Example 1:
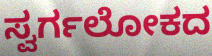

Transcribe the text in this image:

ಸ್ವರ್ಗಲೋಕದ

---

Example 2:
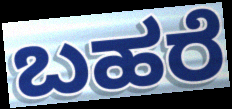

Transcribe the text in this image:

ಬಹರೆ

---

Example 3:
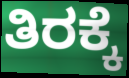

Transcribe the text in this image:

ತಿರಕ್ಕೆ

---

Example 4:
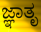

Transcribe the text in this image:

ಜ್ಞಾತೃ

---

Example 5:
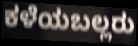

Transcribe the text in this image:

ಕಳೆಯಬಲ್ಲರು